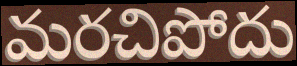
మరచిపోదు